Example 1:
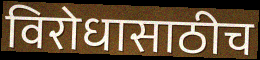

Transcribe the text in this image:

विरोधासाठीच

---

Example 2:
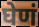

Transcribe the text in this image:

घेणं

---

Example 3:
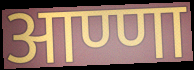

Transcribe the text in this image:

आण्णा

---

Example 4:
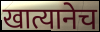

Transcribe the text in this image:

खात्यानेच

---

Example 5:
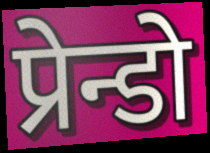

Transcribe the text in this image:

प्रेन्डो